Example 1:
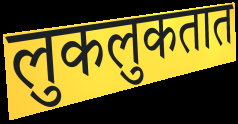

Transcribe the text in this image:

लुकलुकतात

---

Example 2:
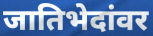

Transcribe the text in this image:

जातिभेदांवर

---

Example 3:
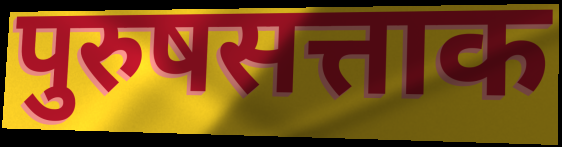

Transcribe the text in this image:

पुरुषसत्ताक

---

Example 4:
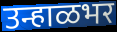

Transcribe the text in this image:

उन्हाळभर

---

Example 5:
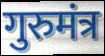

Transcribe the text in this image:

गुरुमंत्र